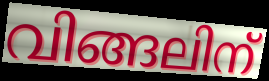
വിങ്ങലിന്